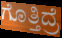
ಗೊತ್ತಿದ್ರೆ